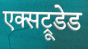
एक्सट्रूडेड